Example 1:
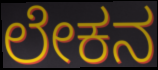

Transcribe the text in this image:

ಲೇಕನ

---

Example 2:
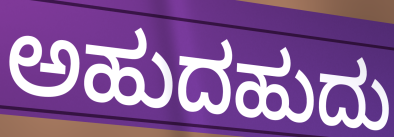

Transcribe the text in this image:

ಅಹುದಹುದು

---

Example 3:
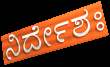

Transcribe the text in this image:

ನಿರ್ದೇಶಃ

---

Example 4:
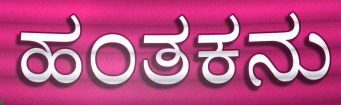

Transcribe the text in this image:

ಹಂತಕನು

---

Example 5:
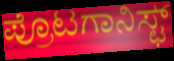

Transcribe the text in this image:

ಪ್ರೊಟಗಾನಿಸ್ಟ್